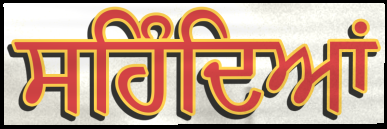
ਸਹਿੰਦਿਆਂ